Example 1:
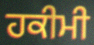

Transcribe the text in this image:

ਹਕੀਮੀ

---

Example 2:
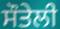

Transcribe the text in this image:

ਸੌਤੇਲੀ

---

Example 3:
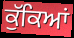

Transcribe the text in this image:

ਕੁੱਕਿਆਂ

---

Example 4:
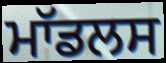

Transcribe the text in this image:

ਮਾੱਡਲਸ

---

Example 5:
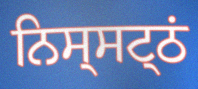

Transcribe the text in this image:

ਨਿਸ੍ਸਟ੍ਠਂ